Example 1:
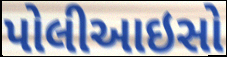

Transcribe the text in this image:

પોલીઆઇસો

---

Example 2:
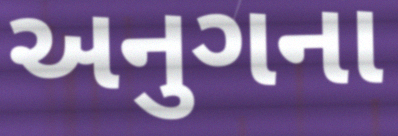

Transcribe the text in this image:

અનુગના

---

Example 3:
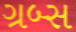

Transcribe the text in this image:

ગ્રબ્સ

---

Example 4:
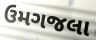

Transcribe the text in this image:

ઉમગજલા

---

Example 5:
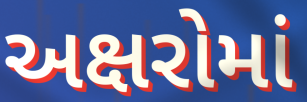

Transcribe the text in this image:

અક્ષરોમાં